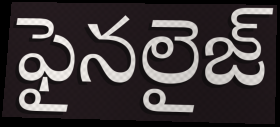
ఫైనలైజ్